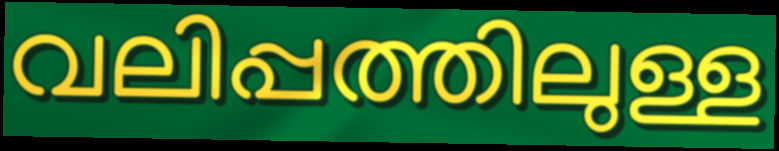
വലിപ്പത്തിലുള്ള